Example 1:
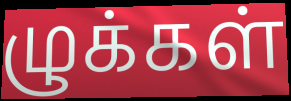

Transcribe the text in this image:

ழுக்கள்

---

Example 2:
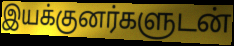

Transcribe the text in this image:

இயக்குனர்களுடன்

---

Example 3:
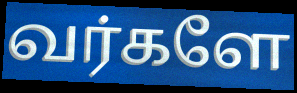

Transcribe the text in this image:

வர்களே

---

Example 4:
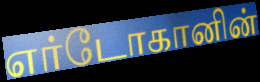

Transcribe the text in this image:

எர்டோகானின்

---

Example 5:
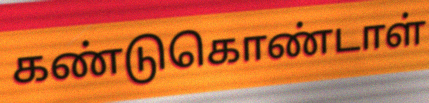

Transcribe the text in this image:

கண்டுகொண்டாள்